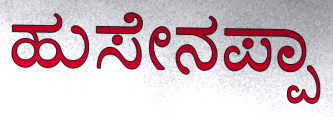
ಹುಸೇನಪ್ಪಾ